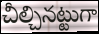
చీల్చినట్టుగా